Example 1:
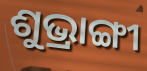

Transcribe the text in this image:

ଶୁଭ୍ରାଙ୍ଗୀ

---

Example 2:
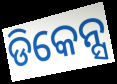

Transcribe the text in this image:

ଡିକେନ୍ସ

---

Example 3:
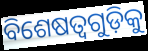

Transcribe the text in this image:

ବିଶେଷତ୍ୱଗୁଡ଼ିକୁ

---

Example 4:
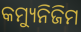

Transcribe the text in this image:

କମ୍ୟୁନିଜିମ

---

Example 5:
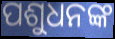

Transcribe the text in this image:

ପଶୁଧନଙ୍କ